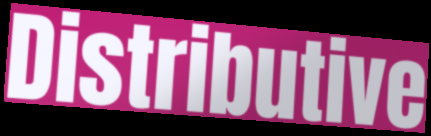
Distributive